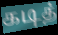
கடித்